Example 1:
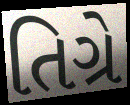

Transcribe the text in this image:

તિગ્રે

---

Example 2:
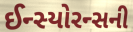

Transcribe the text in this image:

ઈન્સ્યોરન્સની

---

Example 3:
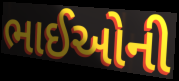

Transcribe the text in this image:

ભાઈઓની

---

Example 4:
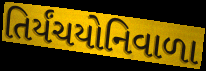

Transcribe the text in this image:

તિર્યંચયોનિવાળા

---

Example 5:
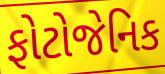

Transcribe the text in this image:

ફોટોજેનિક